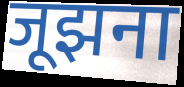
जूझना